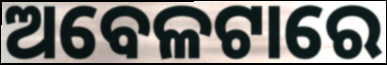
ଅବେଳଟାରେ